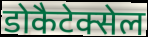
डोकैटेक्सेल